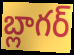
బ్లాగర్